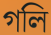
গলি